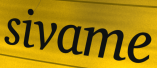
sivame